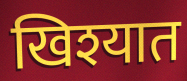
खिश्यात